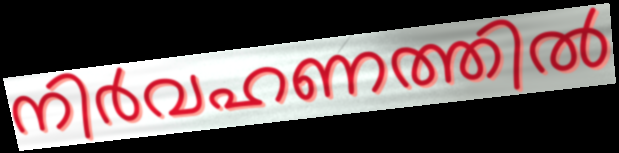
നിർവഹണത്തിൽ